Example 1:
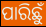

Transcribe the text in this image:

ପାରିଛୁଁ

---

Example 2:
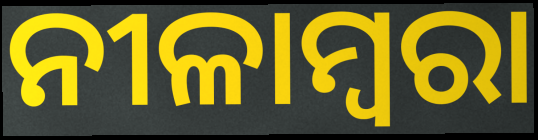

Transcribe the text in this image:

ନୀଳାମ୍ବରା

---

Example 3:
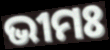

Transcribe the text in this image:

ଭୀମଃ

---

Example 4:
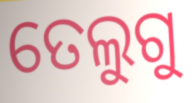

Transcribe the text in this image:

ତେଲୁଗୁ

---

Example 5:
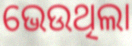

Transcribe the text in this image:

ଭେଉଥିଲା